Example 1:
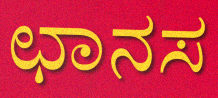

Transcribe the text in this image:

ಛಾನಸ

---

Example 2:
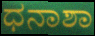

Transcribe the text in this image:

ಧನಾಶಾ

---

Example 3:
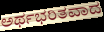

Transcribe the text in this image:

ಅರ್ಥಭರಿತವಾದ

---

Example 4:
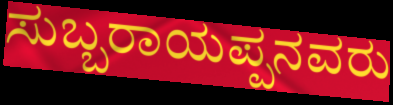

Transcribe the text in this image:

ಸುಬ್ಬರಾಯಪ್ಪನವರು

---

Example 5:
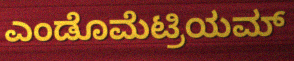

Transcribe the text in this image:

ಎಂಡೊಮೆಟ್ರಿಯಮ್